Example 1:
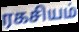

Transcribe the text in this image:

ரகசியம்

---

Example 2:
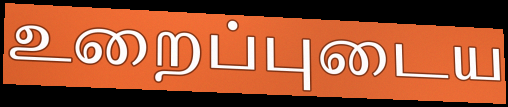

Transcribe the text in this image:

உறைப்புடைய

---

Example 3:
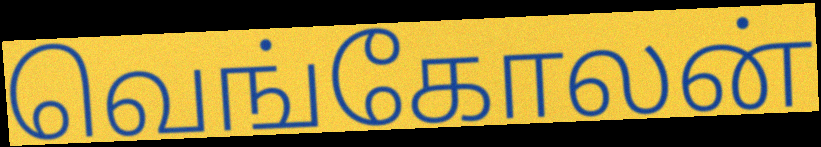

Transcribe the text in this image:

வெங்கோலன்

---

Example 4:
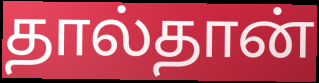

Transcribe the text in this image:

தால்தான்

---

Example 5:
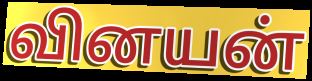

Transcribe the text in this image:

வினயன்